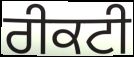
ਰੀਕਟੀ